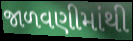
જાળવણીમાંથી